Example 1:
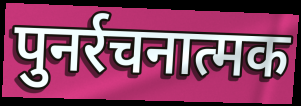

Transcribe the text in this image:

पुनर्रचनात्मक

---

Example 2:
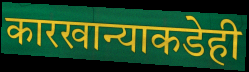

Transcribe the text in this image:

कारखान्याकडेही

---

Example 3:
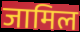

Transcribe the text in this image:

जामिल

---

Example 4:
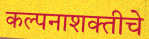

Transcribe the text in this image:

कल्पनाशक्तीचे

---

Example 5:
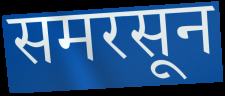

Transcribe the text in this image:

समरसून